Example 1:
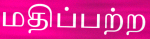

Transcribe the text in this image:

மதிப்பற்ற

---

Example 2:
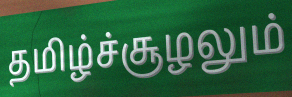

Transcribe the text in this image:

தமிழ்ச்சூழலும்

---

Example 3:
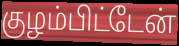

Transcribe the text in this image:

குழம்பிட்டேன்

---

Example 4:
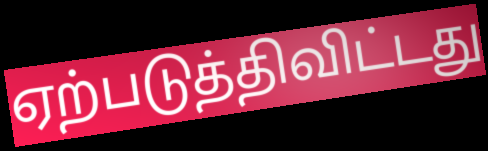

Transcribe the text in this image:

ஏற்படுத்திவிட்டது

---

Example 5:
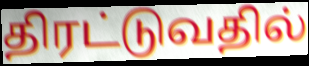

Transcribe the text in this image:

திரட்டுவதில்